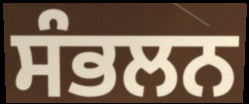
ਸੰਭਲਨ